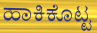
ಹಾಕಿಕೊಟ್ಟ